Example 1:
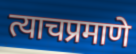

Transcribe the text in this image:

त्याचप्रमाणे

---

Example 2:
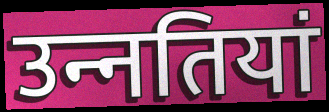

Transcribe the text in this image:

उन्नतियां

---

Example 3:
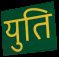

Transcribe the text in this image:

युति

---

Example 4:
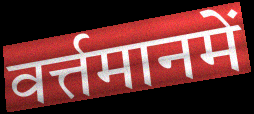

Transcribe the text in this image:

वर्त्तमानमें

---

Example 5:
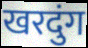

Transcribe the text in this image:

खरदुंग